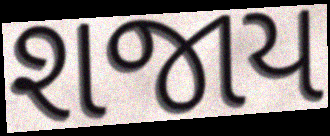
શજાય